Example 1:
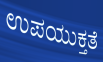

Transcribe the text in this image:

ಉಪಯುಕ್ತತೆ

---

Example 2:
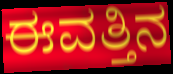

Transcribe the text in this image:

ಈವತ್ತಿನ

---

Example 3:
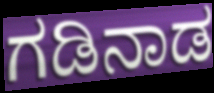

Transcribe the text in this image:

ಗಡಿನಾಡ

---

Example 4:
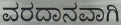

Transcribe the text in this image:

ವರದಾನವಾಗಿ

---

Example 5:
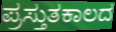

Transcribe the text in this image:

ಪ್ರಸ್ತುತಕಾಲದ